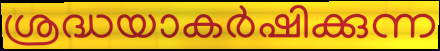
ശ്രദ്ധയാകർഷിക്കുന്ന